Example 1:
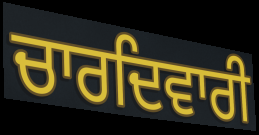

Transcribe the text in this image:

ਚਾਰਦਿਵਾਰੀ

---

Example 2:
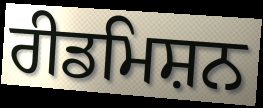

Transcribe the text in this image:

ਰੀਡਮਿਸ਼ਨ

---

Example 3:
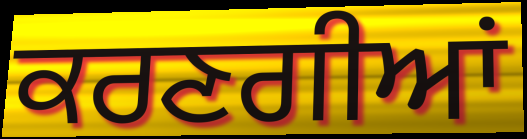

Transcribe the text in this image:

ਕਰਣਗੀਆਂ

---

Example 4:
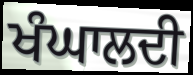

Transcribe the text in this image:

ਖੰਘਾਲਦੀ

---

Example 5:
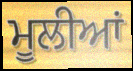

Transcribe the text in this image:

ਮੂਲੀਆਂ